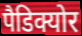
पैडिक्योर